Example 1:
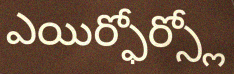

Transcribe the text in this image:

ఎయిర్ఫోర్స్లో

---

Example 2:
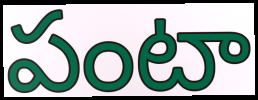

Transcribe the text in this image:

పంటా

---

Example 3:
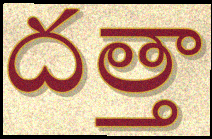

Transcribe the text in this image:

దత్తా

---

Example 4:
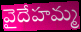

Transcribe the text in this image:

వైదేహమ్మ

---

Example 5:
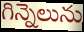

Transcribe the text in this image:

గిన్నెలును